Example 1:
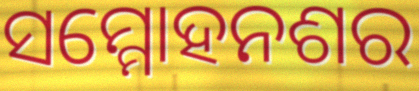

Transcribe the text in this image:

ସମ୍ମୋହନଶର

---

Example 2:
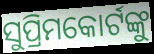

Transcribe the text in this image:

ସୁପ୍ରିମକୋର୍ଟଙ୍କୁ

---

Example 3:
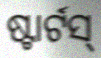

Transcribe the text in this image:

ଷ୍ଟାର୍ଟସ୍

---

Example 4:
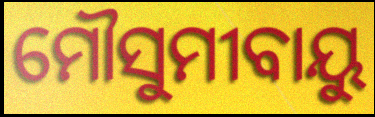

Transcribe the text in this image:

ମୌସୁମୀବାୟୁ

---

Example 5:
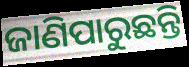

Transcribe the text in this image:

ଜାଣିପାରୁଛନ୍ତି